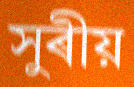
সুৰীয়